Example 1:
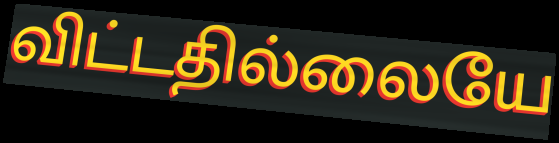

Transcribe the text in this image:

விட்டதில்லையே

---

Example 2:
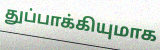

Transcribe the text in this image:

துப்பாக்கியுமாக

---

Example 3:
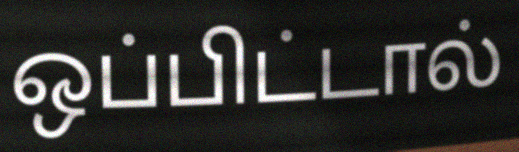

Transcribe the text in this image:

ஒப்பிட்டால்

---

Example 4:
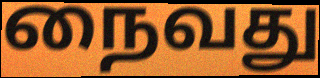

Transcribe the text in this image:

நைவது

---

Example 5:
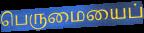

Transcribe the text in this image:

பெருமையைப்